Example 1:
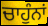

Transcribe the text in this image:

ਚਾਹੁੰਨਾਂ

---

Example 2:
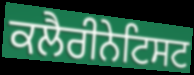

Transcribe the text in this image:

ਕਲੈਰੀਨੇਟਿਸਟ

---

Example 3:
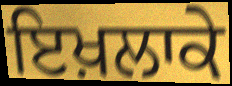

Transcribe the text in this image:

ਇਖ਼ਲਾਕੇ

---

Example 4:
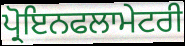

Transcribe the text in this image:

ਪ੍ਰੋਇਨਫਲਾਮੇਟਰੀ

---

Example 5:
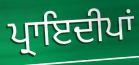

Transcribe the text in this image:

ਪ੍ਰਾਇਦੀਪਾਂ